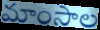
మాంసాల